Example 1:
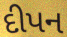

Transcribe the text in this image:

દીપન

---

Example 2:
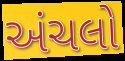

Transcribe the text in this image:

અંચલો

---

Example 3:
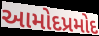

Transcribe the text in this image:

આમોદપ્રમોદ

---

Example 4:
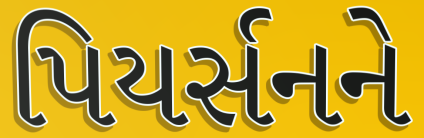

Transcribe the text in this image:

પિયર્સનને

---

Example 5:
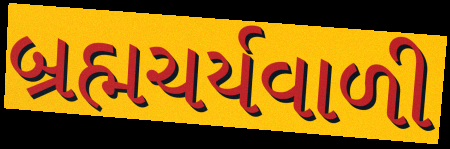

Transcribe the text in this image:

બ્રહ્મચર્યવાળી